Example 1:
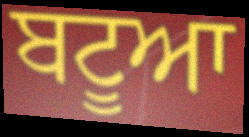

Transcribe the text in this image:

ਬਟੂਆ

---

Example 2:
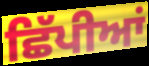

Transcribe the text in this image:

ਛਿੱਪੀਆਂ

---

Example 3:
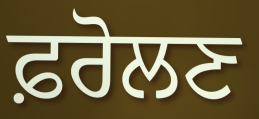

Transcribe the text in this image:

ਫ਼ਰੋਲਣ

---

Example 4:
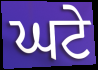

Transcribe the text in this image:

ਘਟੇ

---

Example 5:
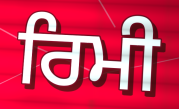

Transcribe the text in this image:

ਰਿਮੀ